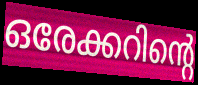
ഒരേക്കറിന്റെ